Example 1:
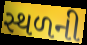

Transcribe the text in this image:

સ્થળની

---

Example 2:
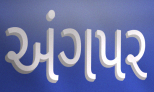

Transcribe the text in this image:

અંગપર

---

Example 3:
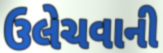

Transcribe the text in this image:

ઉલેચવાની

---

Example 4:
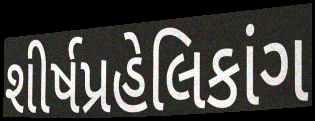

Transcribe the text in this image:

શીર્ષપ્રહેલિકાંગ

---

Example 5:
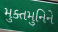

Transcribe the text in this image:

મુક્તમુનિને